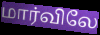
மார்விலே